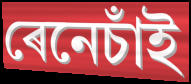
ৰেনেচাঁই